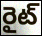
రైట్